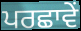
ਪਰਛਾਵੇਂ